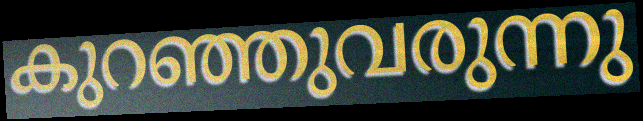
കുറഞ്ഞുവരുന്നു